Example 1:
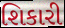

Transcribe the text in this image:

શિકારી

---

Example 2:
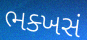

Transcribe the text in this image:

ભક્ખસં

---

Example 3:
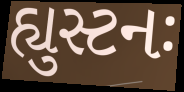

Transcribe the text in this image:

હ્યુસ્ટનઃ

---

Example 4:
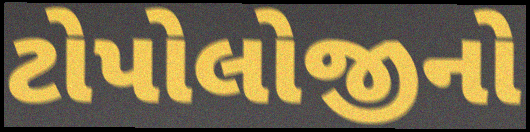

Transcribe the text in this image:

ટોપોલોજીનો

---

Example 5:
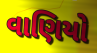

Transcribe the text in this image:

વાણિયો